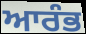
ਆਰੰਭ